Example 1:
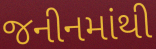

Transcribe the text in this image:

જનીનમાંથી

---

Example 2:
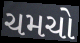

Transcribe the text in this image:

ચમચો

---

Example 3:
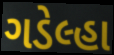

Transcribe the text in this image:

ગડેલ્હા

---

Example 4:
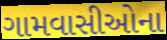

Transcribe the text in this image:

ગામવાસીઓના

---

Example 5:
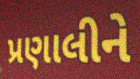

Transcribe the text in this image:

પ્રણાલીને